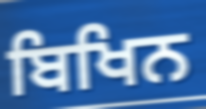
ਬਿਖਿਨ